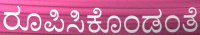
ರೂಪಿಸಿಕೊಂಡಂತೆ